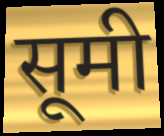
सूमी